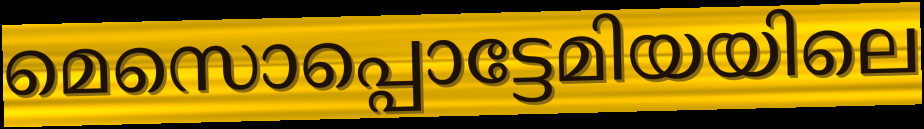
മെസൊപ്പൊട്ടേമിയയിലെ